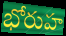
భోరుహ